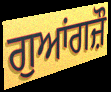
ਗੁਆਂਗਜ਼ੌ